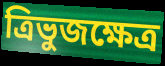
ত্রিভুজক্ষেত্র